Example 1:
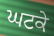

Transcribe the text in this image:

ਘਟਕੇ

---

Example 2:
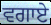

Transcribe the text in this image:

ਵਗਾਏ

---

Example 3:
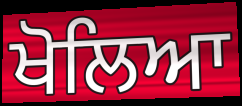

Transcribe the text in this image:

ਖੋਲਿਆ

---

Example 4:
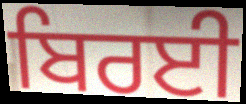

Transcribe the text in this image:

ਬਿਰਈ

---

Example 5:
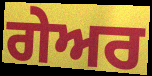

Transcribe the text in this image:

ਗੇਅਰ